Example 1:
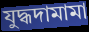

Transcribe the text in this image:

যুদ্ধদামামা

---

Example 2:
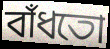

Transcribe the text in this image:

বাঁধতো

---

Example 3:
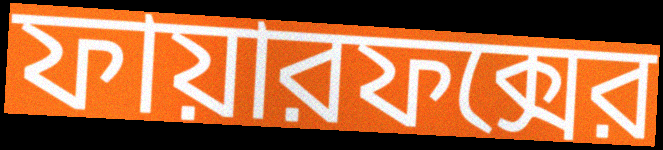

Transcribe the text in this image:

ফায়ারফক্সের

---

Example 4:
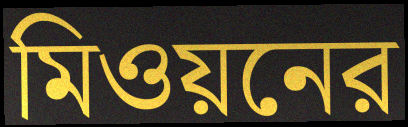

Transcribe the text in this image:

মিওয়নের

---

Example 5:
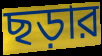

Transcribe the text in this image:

ছড়ার